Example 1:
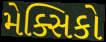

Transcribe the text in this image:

મેક્સિકો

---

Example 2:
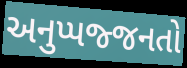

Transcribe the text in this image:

અનુપ્પજ્જનતો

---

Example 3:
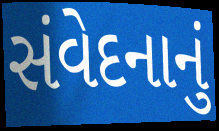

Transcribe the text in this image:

સંવેદનાનું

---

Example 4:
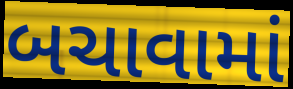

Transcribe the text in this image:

બચાવામાં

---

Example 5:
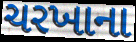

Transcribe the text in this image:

ચરખાના